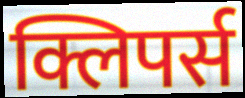
क्लिपर्स